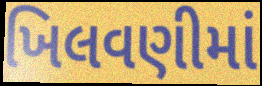
ખિલવણીમાં